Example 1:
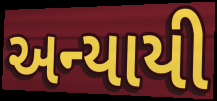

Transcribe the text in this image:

અન્યાયી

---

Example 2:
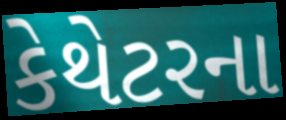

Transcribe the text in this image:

કેથેટરના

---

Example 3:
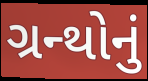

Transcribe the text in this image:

ગ્રન્થોનું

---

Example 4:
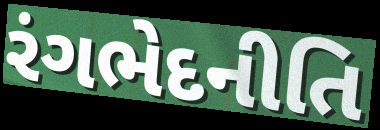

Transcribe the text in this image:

રંગભેદનીતિ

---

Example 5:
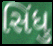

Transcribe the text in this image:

સિંધુ